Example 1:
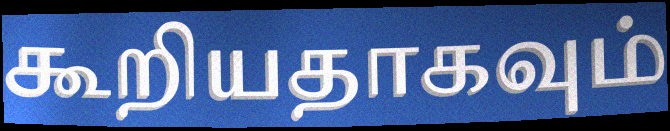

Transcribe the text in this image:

கூறியதாகவும்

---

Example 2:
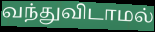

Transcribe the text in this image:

வந்துவிடாமல்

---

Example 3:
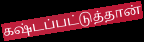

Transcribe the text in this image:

கஷ்டப்பட்டுத்தான்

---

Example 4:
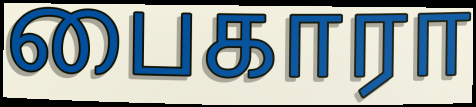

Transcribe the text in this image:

பைகாரா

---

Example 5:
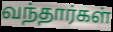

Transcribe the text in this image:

வந்தார்கள்